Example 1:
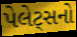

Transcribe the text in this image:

પેલેટ્સનો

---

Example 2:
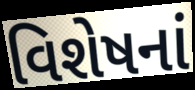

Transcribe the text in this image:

વિશેષનાં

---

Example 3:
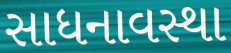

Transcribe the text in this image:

સાધનાવસ્થા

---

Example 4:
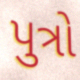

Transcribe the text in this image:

પુત્રો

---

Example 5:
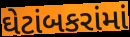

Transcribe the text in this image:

ઘેટાંબકરાંમાં